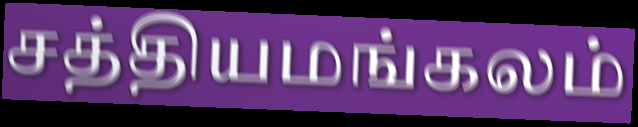
சத்தியமங்கலம்